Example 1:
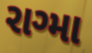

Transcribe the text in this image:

રાગ્મા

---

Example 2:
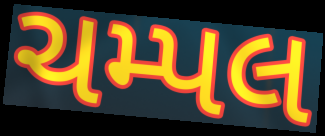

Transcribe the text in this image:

ચમ્પલ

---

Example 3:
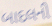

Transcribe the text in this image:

બાદલની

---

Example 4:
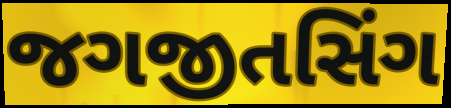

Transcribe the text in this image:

જગજીતસિંગ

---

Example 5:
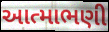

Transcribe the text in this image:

આત્માભણી